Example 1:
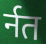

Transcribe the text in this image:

र्नत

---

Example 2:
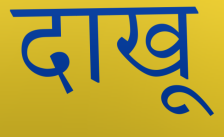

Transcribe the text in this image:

दाखू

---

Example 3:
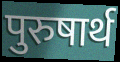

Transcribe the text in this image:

पुरुषार्थ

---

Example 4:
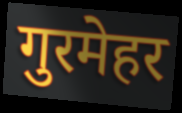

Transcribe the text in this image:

गुरमेहर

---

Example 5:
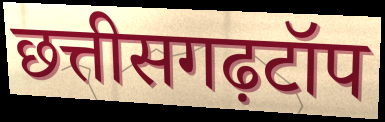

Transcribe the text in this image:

छत्तीसगढ़टॉप